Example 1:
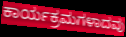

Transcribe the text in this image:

ಕಾರ್ಯಕ್ರಮಗಳಾದವು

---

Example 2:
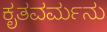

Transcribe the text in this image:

ಕೃತವರ್ಮನು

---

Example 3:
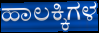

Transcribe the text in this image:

ಹಾಲಕ್ಕಿಗಳ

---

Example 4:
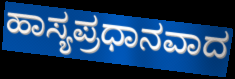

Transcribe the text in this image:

ಹಾಸ್ಯಪ್ರಧಾನವಾದ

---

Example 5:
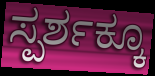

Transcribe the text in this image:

ಸ್ಪರ್ಶಕ್ಕೂ